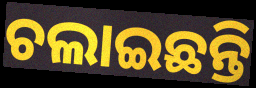
ଚଲାଇଛନ୍ତି